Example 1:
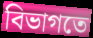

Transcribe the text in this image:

বিভাগতে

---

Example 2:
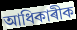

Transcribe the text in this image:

আধিকাৰীক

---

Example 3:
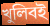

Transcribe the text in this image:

খুলিবই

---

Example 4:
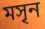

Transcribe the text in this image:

মসৃন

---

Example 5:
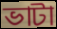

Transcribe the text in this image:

ভাটা